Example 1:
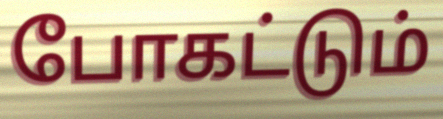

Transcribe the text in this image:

போகட்டும்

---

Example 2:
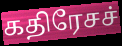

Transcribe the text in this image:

கதிரேசச்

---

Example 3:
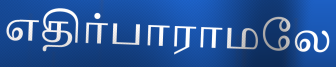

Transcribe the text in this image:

எதிர்பாராமலே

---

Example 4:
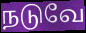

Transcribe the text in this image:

நடுவே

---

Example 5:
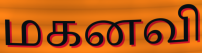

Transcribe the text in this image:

மகனவி